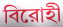
বিরোহী